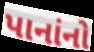
પાનાંનો